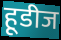
हूडीज